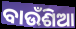
ବାଉଁଶିଆ